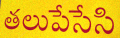
తలుపేసేసి